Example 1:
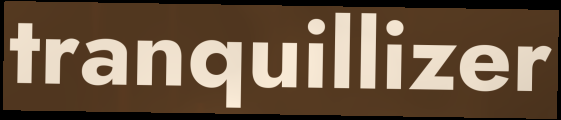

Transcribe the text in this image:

tranquillizer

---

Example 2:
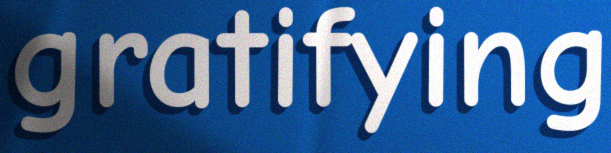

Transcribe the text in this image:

gratifying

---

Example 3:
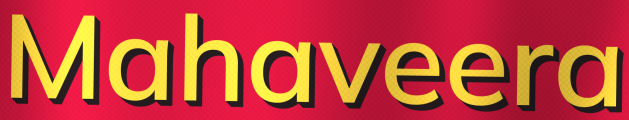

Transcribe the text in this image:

Mahaveera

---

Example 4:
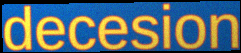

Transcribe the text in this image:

decesion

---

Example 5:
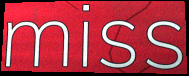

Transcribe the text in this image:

miss